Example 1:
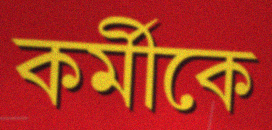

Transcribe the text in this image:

কর্মীকে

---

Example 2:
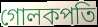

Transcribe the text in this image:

গোলকপতি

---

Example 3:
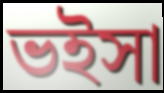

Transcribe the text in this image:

ভইসা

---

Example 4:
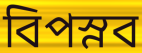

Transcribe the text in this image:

বিপস্নব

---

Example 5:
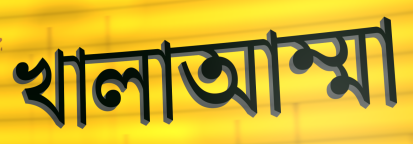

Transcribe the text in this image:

খালাআম্মা